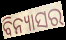
ବିନ୍ୟାସର